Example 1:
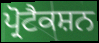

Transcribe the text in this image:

ਪ੍ਰੋਟੈਕਸ਼ਨ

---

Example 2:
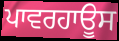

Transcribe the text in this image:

ਪਾਵਰਹਾਊਸ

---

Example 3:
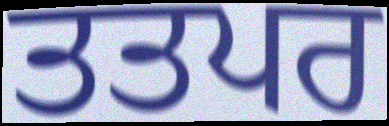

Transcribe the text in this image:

ਤਤਪਰ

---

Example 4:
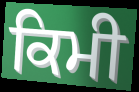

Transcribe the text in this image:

ਕਿਮੀ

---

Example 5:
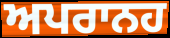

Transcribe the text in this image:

ਅਪਰਾਨਹ